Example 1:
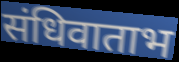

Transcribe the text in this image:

संधिवाताभ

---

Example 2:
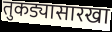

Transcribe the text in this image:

तुकड्यासारखा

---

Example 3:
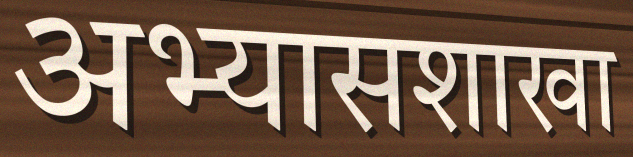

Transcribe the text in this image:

अभ्यासशाखा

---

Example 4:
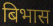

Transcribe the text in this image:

बिभास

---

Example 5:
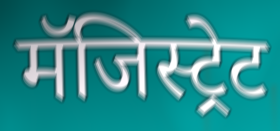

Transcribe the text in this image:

मॅजिस्ट्रेट